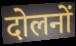
दोलनों